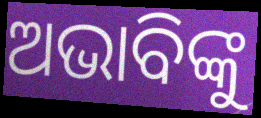
ଅଭାବିଙ୍କୁ